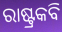
ରାଷ୍ଟ୍ରକବି